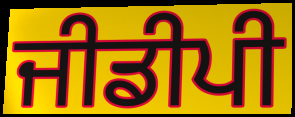
ਜੀਡੀਪੀ